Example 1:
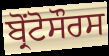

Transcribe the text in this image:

ਬ੍ਰੋਂਟੋਸੌਰਸ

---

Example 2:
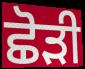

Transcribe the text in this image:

ਛੋੜੀ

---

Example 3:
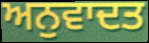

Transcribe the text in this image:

ਅਨੁਵਾਦਤ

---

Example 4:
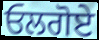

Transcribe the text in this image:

ਓਲਗੋਏ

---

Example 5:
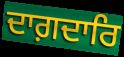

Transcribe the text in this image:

ਦਾਗ਼ਦਾਰਿ